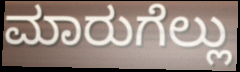
ಮಾರುಗೆಲ್ಲು